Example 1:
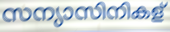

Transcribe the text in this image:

സന്യാസിനികള്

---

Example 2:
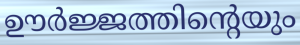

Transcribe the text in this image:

ഊർജ്ജത്തിന്റെയും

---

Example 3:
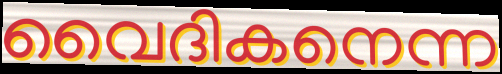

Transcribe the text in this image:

വൈദികനെന്ന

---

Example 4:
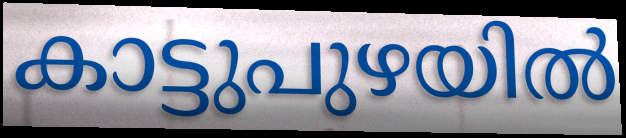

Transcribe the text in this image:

കാട്ടുപുഴയിൽ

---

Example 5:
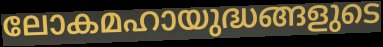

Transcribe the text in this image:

ലോകമഹായുദ്ധങ്ങളുടെ